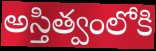
అస్తిత్వంలోకి